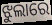
ଝୁଲାରେ